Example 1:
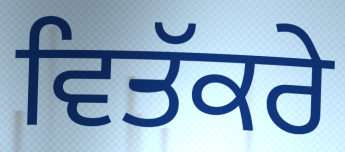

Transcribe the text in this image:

ਵਿਤੱਕਰੇ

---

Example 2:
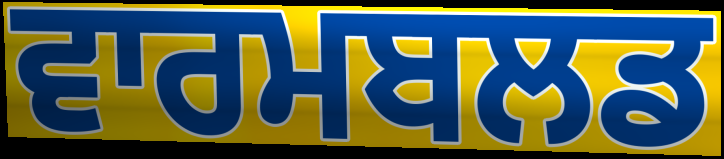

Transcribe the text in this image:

ਵਾਰਮਬਲਡ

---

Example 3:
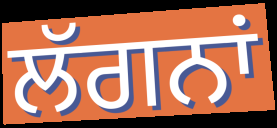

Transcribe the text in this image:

ਲੱਗਨਾਂ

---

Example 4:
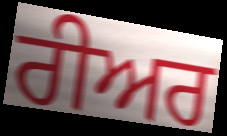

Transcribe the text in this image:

ਰੀਅਰ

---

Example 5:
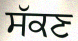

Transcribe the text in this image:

ਸੱਕਣ